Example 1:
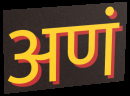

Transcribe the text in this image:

अणं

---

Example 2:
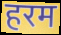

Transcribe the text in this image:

हरम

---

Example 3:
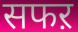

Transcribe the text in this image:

सफऱ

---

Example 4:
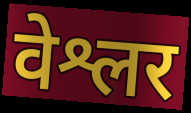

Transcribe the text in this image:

वेश्लर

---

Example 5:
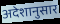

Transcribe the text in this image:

अदेशानुसार